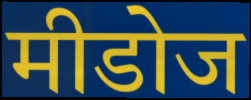
मीडोज